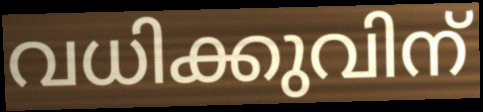
വധിക്കുവിന്